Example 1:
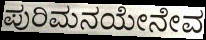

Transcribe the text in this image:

ಪುರಿಮನಯೇನೇವ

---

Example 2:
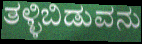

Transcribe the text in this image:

ತಳ್ಳಿಬಿಡುವನು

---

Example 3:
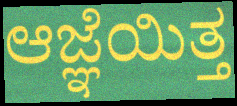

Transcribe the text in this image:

ಆಜ್ಞೆಯಿತ್ತ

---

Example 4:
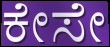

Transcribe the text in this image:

ಕೇಸೇ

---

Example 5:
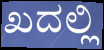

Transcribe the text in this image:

ಖದಲ್ಲಿ